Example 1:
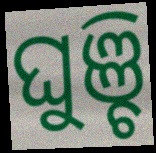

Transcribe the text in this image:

ଘୁଞ୍ଚି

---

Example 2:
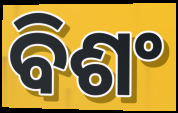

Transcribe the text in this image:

ବିଶଂ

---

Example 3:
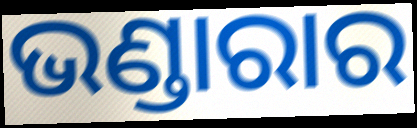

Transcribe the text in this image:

ଭଣ୍ଡାରାର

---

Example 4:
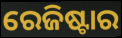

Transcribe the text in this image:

ରେଜିଷ୍ଟାର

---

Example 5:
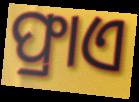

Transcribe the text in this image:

ଫ୍ରାଏ